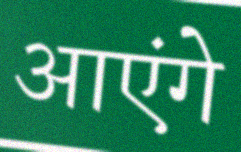
आएंगे